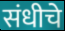
संधीचे